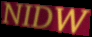
NIDW